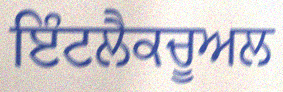
ਇੰਟਲੈਕਚੂਅਲ